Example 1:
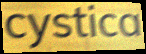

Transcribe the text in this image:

cystica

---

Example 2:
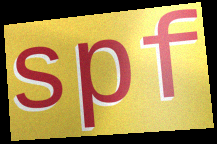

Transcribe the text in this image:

spf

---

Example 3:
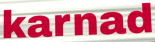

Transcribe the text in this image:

karnad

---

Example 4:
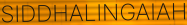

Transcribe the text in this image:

SIDDHALINGAIAH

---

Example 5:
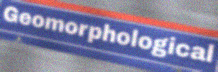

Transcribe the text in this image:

Geomorphological